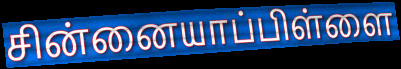
சின்னையாப்பிள்ளை